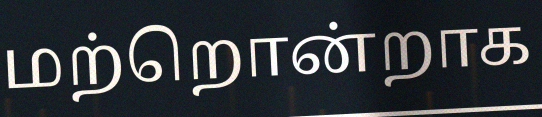
மற்றொன்றாக